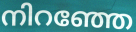
നിറഞ്ഞേ